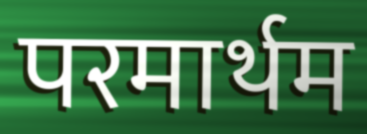
परमार्थम